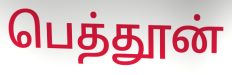
பெத்தூன்